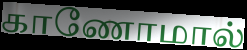
காணோமால்